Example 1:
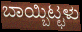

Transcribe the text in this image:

ಬಾಯ್ಬಿಟ್ಟಳು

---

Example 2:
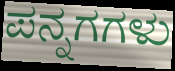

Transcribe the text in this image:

ಪನ್ನಗಗಳು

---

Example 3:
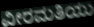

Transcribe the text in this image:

ವೀರಮತಿಯು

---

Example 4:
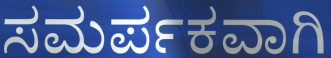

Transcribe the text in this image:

ಸಮರ್ಪಕವಾಗಿ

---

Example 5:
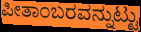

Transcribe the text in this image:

ಪೀತಾಂಬರವನ್ನುಟ್ಟು